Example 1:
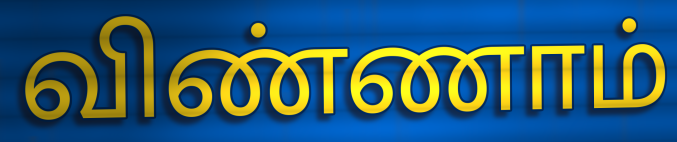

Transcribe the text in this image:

விண்ணாம்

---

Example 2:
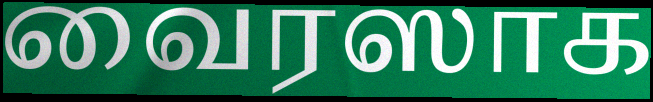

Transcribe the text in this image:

வைரஸாக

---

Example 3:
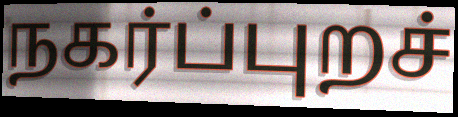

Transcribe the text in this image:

நகர்ப்புறச்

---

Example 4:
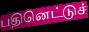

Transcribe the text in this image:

பதினெட்டுச்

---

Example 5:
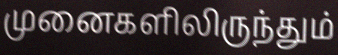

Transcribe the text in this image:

முனைகளிலிருந்தும்